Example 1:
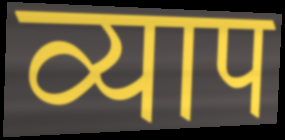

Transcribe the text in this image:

व्याप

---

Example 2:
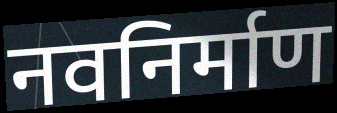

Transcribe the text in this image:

नवनिर्माण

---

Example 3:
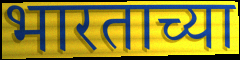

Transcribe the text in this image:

भारताच्या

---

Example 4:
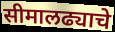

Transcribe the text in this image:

सीमालढ्याचे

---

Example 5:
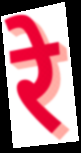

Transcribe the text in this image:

रे